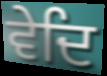
ਵੇਦਿ